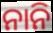
ନାନି